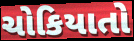
ચોકિયાતો